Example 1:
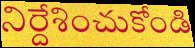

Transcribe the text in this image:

నిర్దేశించుకోండి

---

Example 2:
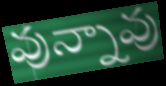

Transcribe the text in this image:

వున్నావు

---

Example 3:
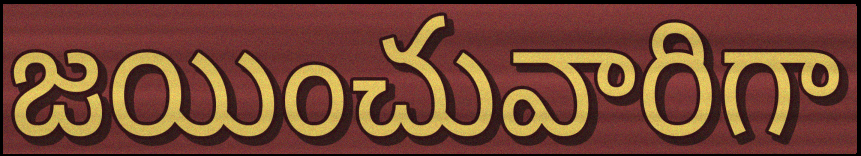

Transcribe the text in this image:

జయించువారిగా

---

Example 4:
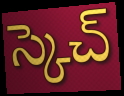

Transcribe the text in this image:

స్కెచ్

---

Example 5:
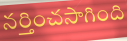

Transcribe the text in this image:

నర్తించసాగింది